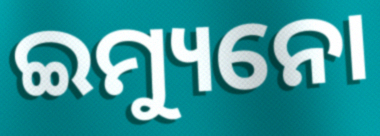
ଇମ୍ୟୁନୋ